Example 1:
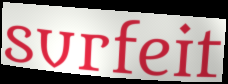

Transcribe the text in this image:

surfeit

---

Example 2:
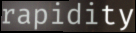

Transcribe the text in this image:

rapidity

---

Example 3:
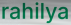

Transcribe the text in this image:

rahilya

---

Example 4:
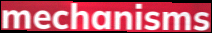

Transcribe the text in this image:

mechanisms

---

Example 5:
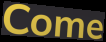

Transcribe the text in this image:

Come